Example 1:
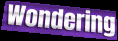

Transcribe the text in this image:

Wondering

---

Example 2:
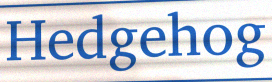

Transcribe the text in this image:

Hedgehog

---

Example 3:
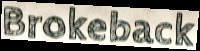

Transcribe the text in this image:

Brokeback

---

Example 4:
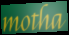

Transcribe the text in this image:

motha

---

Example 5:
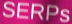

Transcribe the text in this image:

SERPs